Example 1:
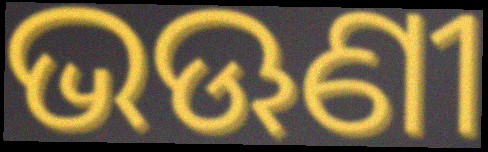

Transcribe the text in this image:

ଭଊଣୀ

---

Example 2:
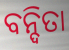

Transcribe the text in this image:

ବନ୍ଦିତା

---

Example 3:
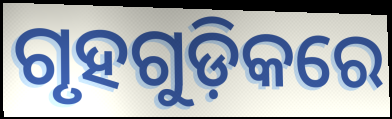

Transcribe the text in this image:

ଗୃହଗୁଡ଼ିକରେ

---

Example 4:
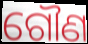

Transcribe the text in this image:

ଗୌଣ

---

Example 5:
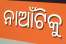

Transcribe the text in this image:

ନାଆଁଟିକୁ